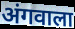
अंगवाला